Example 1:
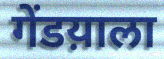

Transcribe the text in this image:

गेंडय़ाला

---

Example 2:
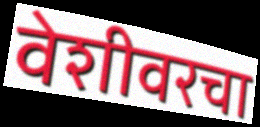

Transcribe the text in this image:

वेशीवरचा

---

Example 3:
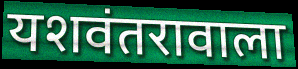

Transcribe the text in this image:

यशवंतरावाला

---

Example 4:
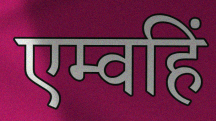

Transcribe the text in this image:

एम्वहिं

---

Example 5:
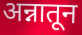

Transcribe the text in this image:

अन्नातून